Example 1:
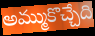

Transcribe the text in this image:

అమ్ముకొచ్చేది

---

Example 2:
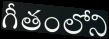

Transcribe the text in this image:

గీతంలోని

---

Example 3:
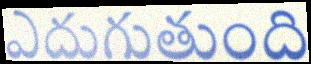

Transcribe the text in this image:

ఎదుగుతుంది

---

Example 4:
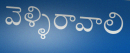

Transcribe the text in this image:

వెళ్ళిరావాలి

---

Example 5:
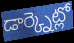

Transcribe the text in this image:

డార్క్నెట్లో